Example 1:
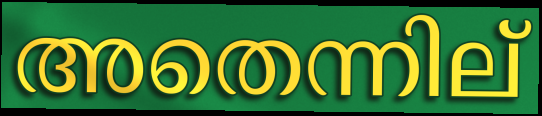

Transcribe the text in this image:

അതെന്നില്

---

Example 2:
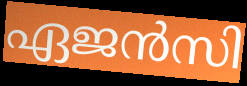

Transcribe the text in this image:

ഏജൻസി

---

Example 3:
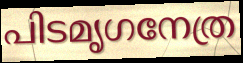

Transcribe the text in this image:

പിടമൃഗനേത്ര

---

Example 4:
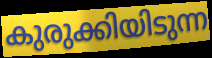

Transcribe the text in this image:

കുരുക്കിയിടുന്ന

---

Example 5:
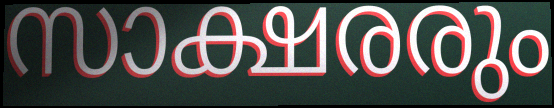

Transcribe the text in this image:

സാക്ഷരരും